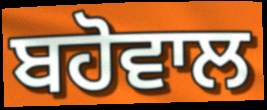
ਬਹੋਵਾਲ